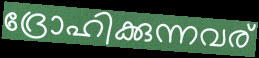
ദ്രോഹിക്കുന്നവര്